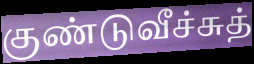
குண்டுவீச்சுத்